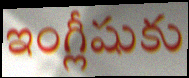
ఇంగ్లీషుకు